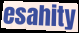
esahity